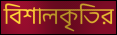
বিশালকৃতির